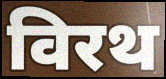
विरथ